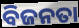
ବିଜନତା